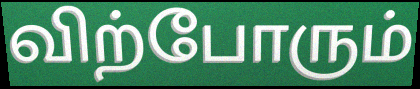
விற்போரும்